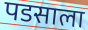
पडसाला